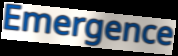
Emergence